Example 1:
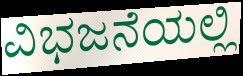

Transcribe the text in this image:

ವಿಭಜನೆಯಲ್ಲಿ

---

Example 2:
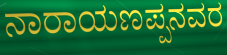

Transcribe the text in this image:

ನಾರಾಯಣಪ್ಪನವರ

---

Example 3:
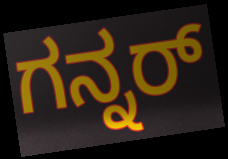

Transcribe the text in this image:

ಗನ್ನರ್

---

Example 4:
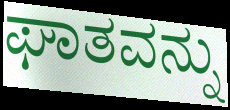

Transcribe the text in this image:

ಘಾತವನ್ನು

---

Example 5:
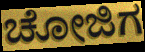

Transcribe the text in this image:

ಚೋಜಿಗ